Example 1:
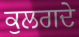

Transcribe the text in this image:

ਕੁਲਗਦੇ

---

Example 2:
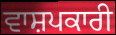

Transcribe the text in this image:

ਵਾਸ਼ਪਕਾਰੀ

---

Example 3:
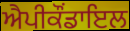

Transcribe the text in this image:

ਐਪੀਕੌਂਡਾਇਲ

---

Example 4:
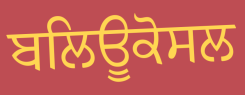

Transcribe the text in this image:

ਬਲਿਊਕੋਸਲ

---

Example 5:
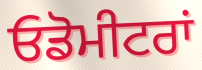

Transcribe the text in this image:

ਓਡੋਮੀਟਰਾਂ